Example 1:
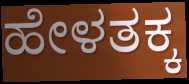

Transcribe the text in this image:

ಹೇಳತಕ್ಕ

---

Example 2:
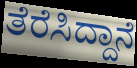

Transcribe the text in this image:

ತೆರೆಸಿದ್ದಾನೆ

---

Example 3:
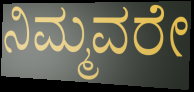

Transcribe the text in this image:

ನಿಮ್ಮವರೇ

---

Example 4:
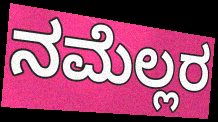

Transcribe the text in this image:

ನಮೆಲ್ಲರ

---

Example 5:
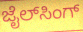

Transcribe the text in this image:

ಜೈಲ್‌ಸಿಂಗ್